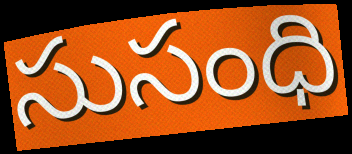
సుసంధి